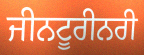
ਜੀਨਟੂਰੀਨਰੀ